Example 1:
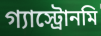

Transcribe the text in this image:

গ্যাস্ট্রোনমি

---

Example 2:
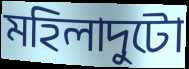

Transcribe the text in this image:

মহিলাদুটো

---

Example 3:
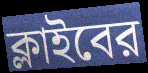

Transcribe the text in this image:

ক্লাইবের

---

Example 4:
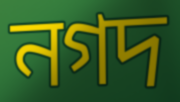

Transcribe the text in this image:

নগদ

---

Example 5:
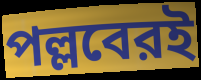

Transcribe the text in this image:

পল্লবেরই